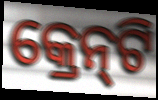
କ୍ରେନ୍‍ଟି